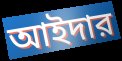
আইদার